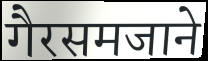
गैरसमजाने